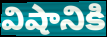
విషానికి